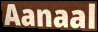
Aanaal